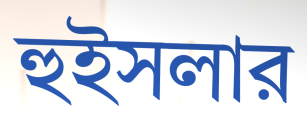
হুইসলার